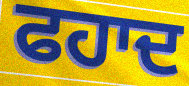
ਫਹਾਦ